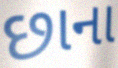
છાના